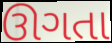
ઊગતા